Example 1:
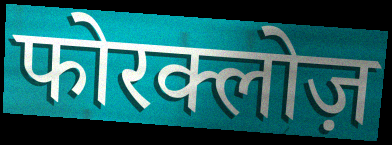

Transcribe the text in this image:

फोरक्लोज़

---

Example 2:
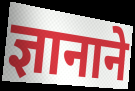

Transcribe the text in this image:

ज्ञानाने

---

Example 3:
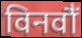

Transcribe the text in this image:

विनवौं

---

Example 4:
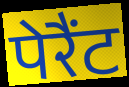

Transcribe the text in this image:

पेरैंट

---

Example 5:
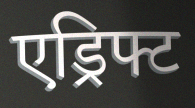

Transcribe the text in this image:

एड्रिफ्ट